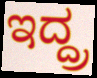
ಇದ್ದ್ರ